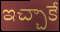
ఇచ్చాకే